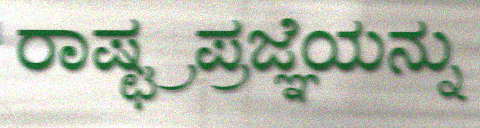
ರಾಷ್ಟ್ರಪ್ರಜ್ಞೆಯನ್ನು